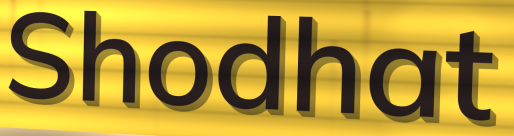
Shodhat